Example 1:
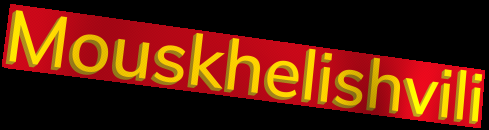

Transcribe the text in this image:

Mouskhelishvili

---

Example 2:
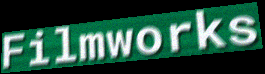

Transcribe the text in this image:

Filmworks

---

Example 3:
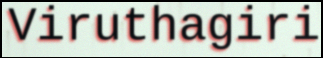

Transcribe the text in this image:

Viruthagiri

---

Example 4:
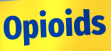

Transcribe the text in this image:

Opioids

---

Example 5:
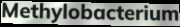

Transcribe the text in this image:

Methylobacterium